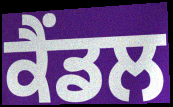
ਕੈਂਡਲ